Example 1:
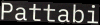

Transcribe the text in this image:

Pattabi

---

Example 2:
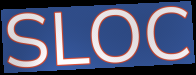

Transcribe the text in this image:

SLOC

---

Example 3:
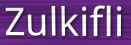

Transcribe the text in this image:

Zulkifli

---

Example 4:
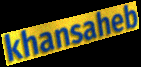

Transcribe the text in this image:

khansaheb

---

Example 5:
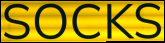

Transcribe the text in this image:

SOCKS